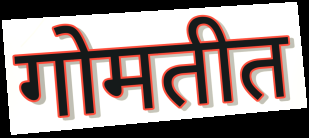
गोमतीत